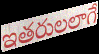
ఇతరులలాగే